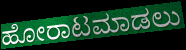
ಹೋರಾಟಮಾಡಲು